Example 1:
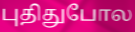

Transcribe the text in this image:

புதிதுபோல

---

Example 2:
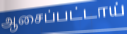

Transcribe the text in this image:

ஆசைப்பட்டாய்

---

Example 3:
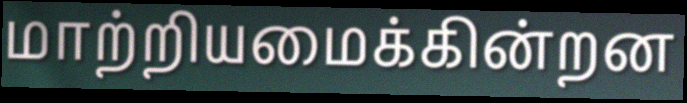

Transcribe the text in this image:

மாற்றியமைக்கின்றன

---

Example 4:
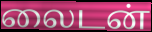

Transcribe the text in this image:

லைடன்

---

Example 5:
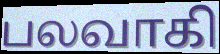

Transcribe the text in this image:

பலவாகி